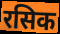
रसिक